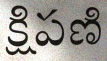
క్షిపణి